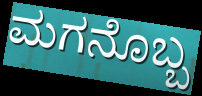
ಮಗನೊಬ್ಬ